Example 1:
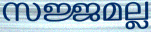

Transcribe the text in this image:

സജ്ജമല്ല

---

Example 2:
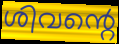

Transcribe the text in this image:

ശിവന്റെ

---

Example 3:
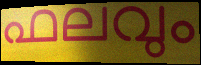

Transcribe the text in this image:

ഫലവും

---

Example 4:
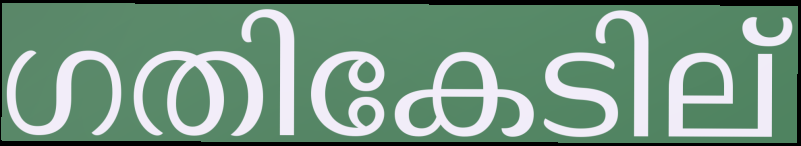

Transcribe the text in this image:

ഗതികേടില്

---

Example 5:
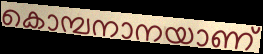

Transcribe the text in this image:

കൊമ്പനാനയാണ്